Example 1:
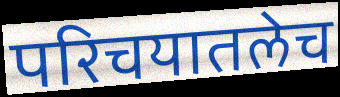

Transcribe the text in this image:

परिचयातलेच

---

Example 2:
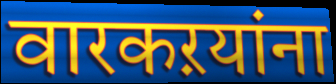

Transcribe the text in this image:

वारकऱयांना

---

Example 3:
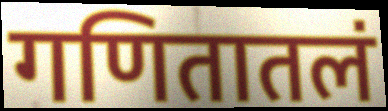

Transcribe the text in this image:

गणितातलं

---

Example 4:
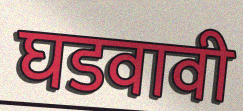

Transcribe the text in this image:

घडवावी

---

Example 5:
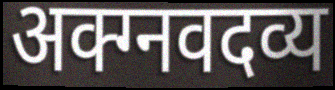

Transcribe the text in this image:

अक्ग्नवदव्य